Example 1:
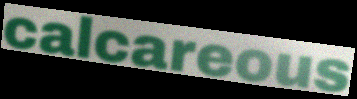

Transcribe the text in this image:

calcareous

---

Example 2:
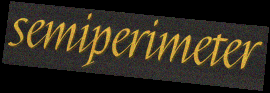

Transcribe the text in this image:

semiperimeter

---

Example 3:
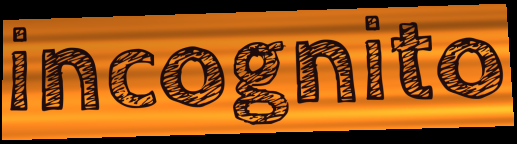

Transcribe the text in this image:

incognito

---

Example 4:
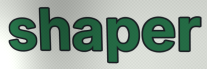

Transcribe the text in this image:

shaper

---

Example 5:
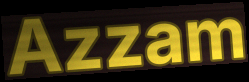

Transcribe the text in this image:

Azzam